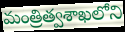
మంత్రిత్వశాఖలోని